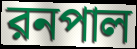
রনপাল